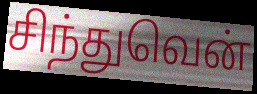
சிந்துவென்